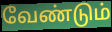
வேண்டும்